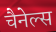
चैनेल्स